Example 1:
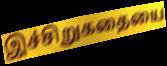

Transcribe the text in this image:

இச்சிறுகதையை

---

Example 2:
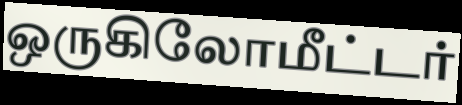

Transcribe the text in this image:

ஒருகிலோமீட்டர்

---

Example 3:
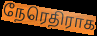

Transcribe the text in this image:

நேரெதிராக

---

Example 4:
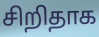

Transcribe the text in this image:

சிறிதாக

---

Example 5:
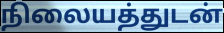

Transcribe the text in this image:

நிலையத்துடன்